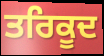
ਤਰਿਕੂਦ